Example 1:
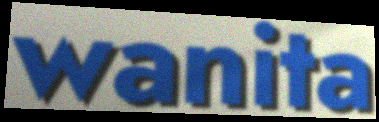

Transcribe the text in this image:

wanita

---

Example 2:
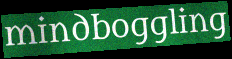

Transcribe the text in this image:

mindboggling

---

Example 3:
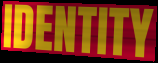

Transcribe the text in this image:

IDENTITY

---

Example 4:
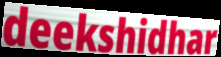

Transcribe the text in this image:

deekshidhar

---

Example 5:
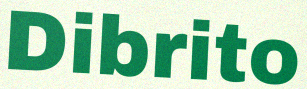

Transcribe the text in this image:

Dibrito